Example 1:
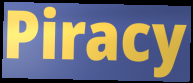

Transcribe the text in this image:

Piracy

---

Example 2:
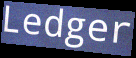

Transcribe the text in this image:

Ledger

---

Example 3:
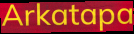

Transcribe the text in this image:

Arkatapa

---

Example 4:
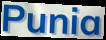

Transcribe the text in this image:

Punia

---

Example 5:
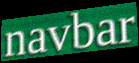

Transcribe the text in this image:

navbar